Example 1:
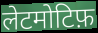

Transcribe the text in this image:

लेटमोटिफ़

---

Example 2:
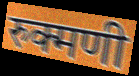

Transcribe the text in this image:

रुक्मणी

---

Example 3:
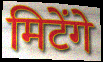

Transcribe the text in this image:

मिटेंगे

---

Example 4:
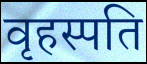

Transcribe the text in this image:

वृहस्पति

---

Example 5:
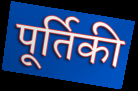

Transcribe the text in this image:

पूर्तिकी